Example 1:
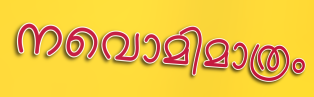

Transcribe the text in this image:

നവൊമിമാത്രം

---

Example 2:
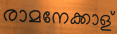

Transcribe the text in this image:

രാമനേക്കാള്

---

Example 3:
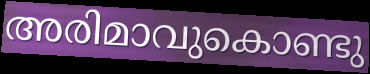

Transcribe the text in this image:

അരിമാവുകൊണ്ടു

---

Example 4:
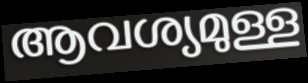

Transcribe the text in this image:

ആവശ്യമുള്ള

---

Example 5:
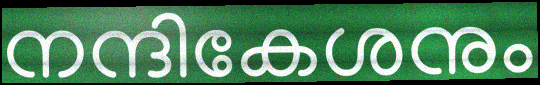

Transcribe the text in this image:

നന്ദികേശനും